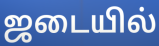
ஜடையில்